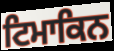
ਟਿਮਾਕਿਨ